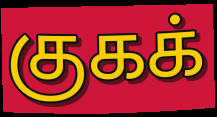
குகக்